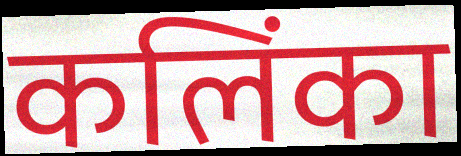
कलिंका